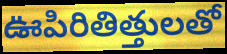
ఊపిరితిత్తులతో